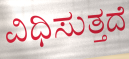
ವಿಧಿಸುತ್ತದೆ